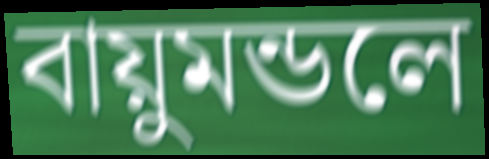
বায়ুমন্ডলে